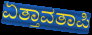
ಏತ್ತಾವತಾಪಿ